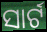
ସାର୍ଟ